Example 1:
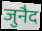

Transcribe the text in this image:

जुनैद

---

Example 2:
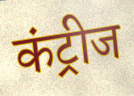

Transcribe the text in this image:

कंट्रीज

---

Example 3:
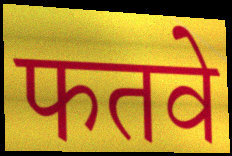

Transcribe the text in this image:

फतवे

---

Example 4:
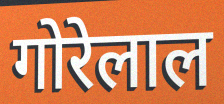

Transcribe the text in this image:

गोरेलाल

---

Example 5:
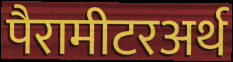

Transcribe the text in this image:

पैरामीटरअर्थ